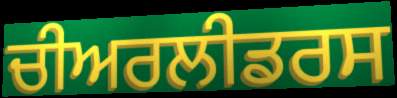
ਚੀਅਰਲੀਡਰਸ